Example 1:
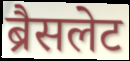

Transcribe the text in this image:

ब्रैसलेट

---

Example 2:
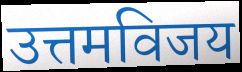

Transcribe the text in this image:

उत्तमविजय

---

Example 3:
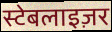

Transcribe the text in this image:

स्टेबलाइज़र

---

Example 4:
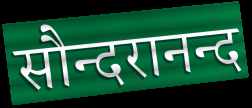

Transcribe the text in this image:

सौन्दरानन्द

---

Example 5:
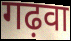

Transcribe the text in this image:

गढ़वा